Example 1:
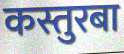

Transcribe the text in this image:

कस्तुरबा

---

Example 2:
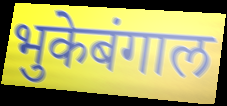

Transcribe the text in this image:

भुकेबंगाल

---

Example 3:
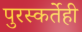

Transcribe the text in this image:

पुरस्कर्तेही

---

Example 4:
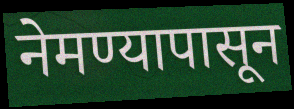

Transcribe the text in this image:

नेमण्यापासून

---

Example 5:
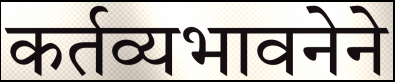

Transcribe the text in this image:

कर्तव्यभावनेने